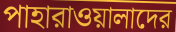
পাহারাওয়ালাদের